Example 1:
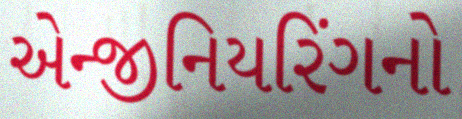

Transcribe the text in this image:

એન્જીનિયરિંગનો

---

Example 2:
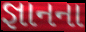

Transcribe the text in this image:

જ્ઞાનના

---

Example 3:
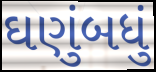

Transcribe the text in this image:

ઘણુંબધું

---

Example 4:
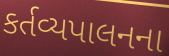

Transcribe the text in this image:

કર્તવ્યપાલનના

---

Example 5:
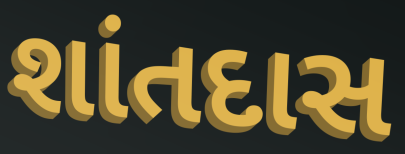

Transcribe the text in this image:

શાંતદાસ